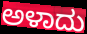
ಅಳಾದು